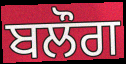
ਬਲੌਗ